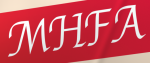
MHFA